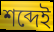
শব্দেই